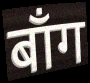
बाँग